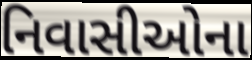
નિવાસીઓના